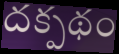
దక్పథం